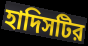
হাদিসটির